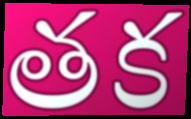
తక